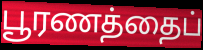
பூரணத்தைப்